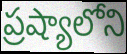
ప్రష్యాలోని